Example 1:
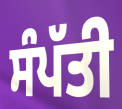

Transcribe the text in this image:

ਸੰਪੱਤੀ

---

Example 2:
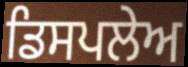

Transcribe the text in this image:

ਡਿਸਪਲੇਅ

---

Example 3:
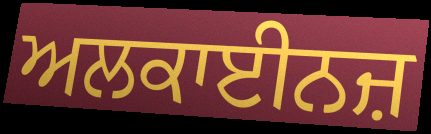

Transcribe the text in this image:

ਅਲਕਾਈਨਜ਼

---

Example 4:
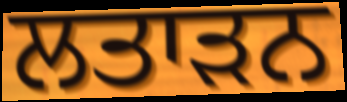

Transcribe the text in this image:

ਲਤਾੜਨ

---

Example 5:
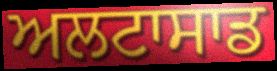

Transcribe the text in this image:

ਅਲਟਾਸਾਡ